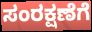
ಸಂರಕ್ಷಣೆಗೆ